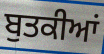
ਬੁਤਕੀਆਂ